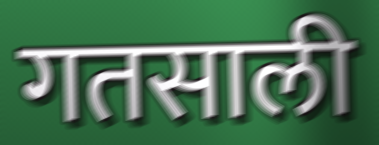
गतसाली